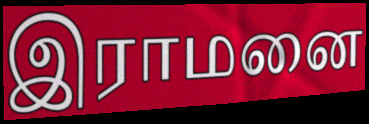
இராமனை